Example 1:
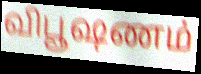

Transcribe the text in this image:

விபூஷணம்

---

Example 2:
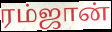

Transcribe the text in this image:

ரம்ஜான்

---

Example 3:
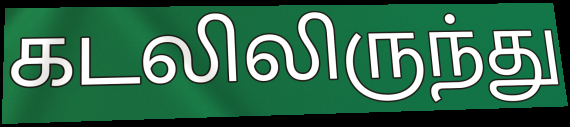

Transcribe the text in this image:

கடலிலிருந்து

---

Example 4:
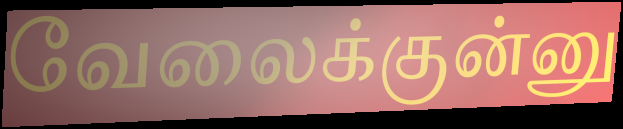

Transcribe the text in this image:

வேலைக்குன்னு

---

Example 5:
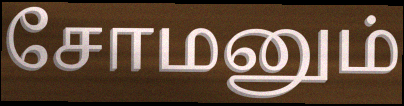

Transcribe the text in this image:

சோமனும்